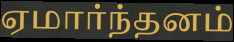
ஏமார்ந்தனம்